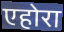
एहोरा